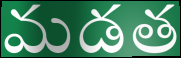
మడత